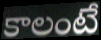
కాలంటే